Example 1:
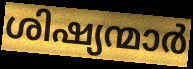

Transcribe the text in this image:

ശിഷ്യന്മാർ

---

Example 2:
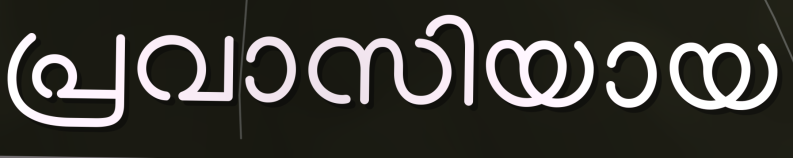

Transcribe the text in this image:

പ്രവാസിയായ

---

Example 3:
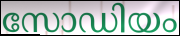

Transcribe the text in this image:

സോഡിയം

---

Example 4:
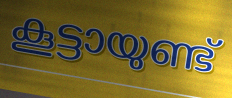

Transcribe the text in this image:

കൂട്ടായുണ്ട്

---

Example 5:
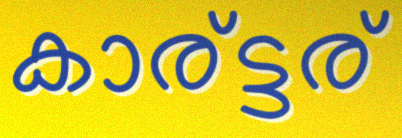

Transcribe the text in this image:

കാര്ട്ടര്